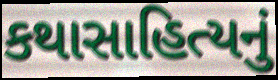
કથાસાહિત્યનું